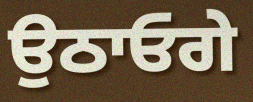
ਉਠਾਓਗੇ